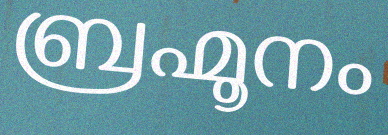
ബ്രഹ്മൂനം